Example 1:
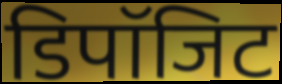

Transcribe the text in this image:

डिपॉजिट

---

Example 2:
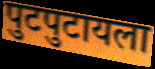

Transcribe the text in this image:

पुटपुटायला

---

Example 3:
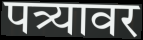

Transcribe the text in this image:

पत्र्यावर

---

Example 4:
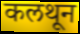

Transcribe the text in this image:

कलथून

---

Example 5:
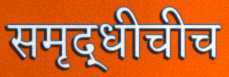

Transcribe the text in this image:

समृद्धीचीच